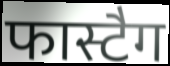
फास्टैग